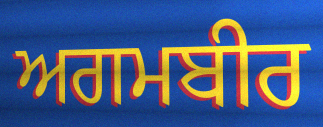
ਅਗਮਬੀਰ